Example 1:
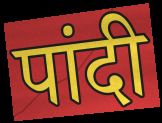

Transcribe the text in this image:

पांदी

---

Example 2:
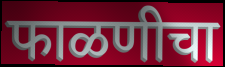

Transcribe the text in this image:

फाळणीचा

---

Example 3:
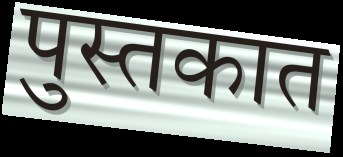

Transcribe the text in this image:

पुस्तकात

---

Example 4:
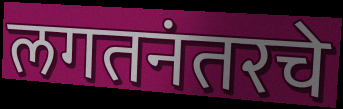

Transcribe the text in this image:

लगतनंतरचे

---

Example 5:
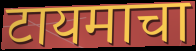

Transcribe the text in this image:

टायमाचा